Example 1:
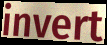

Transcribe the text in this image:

invert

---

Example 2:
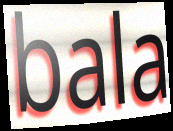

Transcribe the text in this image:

bala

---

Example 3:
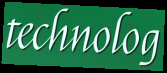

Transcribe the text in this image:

technolog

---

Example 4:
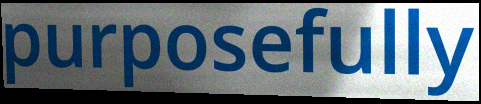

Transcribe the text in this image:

purposefully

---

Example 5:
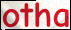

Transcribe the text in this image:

otha